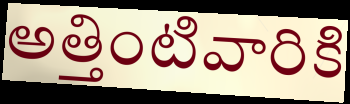
అత్తింటివారికి